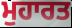
ਮੁਹਾਰਤ